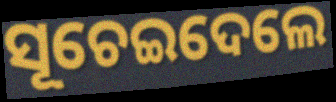
ସୂଚେଇଦେଲେ